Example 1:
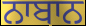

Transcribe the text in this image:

ਨਾਬਾਨ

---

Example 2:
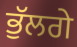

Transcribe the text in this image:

ਭੁੱਲਗੇ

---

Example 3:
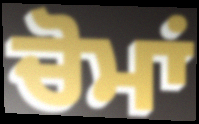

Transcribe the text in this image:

ਚੋਮਾਂ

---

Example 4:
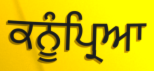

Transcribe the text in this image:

ਕਨੂੰਪ੍ਰਿਆ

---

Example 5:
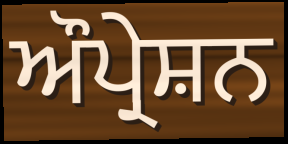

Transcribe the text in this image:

ਔਪ੍ਰੇਸ਼ਨ